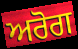
ਅਰੋਗ